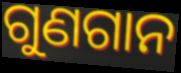
ଗୁଣଗାନ